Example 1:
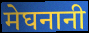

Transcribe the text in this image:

मेघनानी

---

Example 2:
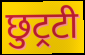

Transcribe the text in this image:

छुट्रटी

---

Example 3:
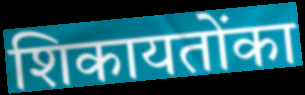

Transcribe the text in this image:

शिकायतोंका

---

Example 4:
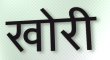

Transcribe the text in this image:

खोरी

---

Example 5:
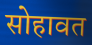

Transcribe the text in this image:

सोहावत